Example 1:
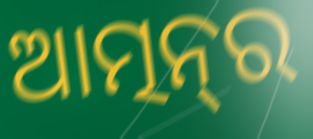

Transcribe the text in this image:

ଆତ୍ମନ୍‌ର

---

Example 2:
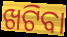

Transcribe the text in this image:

ଖଟିବା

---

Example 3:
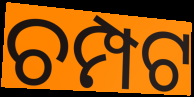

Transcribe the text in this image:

ଚମ୍ପଟ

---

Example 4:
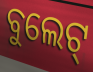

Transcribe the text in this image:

ବୁଲେଟ୍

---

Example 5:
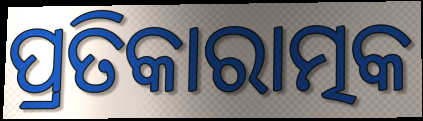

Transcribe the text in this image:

ପ୍ରତିକାରାତ୍ମକ